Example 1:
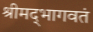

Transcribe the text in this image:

श्रीमद्‌भागवतं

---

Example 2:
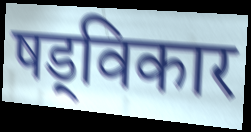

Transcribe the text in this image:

षड्‌विकार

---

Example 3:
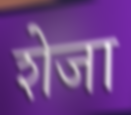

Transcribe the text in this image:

शेजा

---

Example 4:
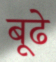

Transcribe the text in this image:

बूढे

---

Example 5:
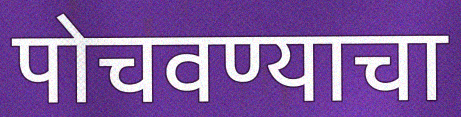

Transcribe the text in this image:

पोचवण्याचा